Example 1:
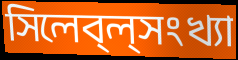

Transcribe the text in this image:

সিলেব্‌ল্‌সংখ্যা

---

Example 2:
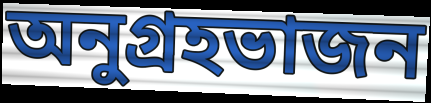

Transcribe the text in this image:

অনুগ্রহভাজন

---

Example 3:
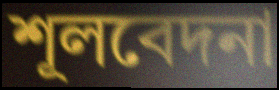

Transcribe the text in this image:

শূলবেদনা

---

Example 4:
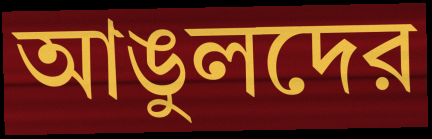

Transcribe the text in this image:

আঙুলদের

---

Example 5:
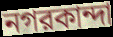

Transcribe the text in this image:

নগরকান্দা